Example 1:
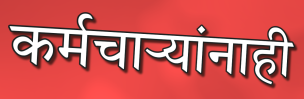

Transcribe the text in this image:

कर्मचाऱ्यांनाही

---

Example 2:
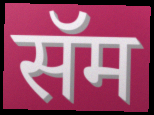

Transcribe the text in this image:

सॅम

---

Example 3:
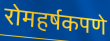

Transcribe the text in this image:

रोमहर्षकपणे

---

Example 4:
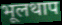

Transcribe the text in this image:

भूलथाप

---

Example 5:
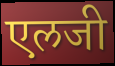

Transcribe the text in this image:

एलजी